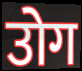
उोग